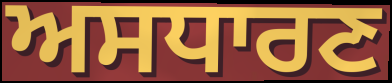
ਅਸਧਾਰਣ